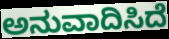
ಅನುವಾದಿಸಿದೆ